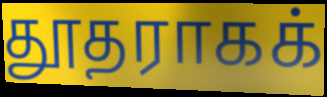
தூதராகக்